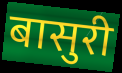
बासुरी